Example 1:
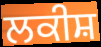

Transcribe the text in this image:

ਲਕੀਸ਼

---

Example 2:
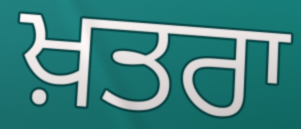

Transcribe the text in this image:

ਖ਼ਤਰਾ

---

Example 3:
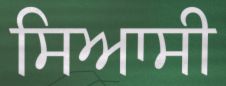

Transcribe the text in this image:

ਸਿਆਸੀ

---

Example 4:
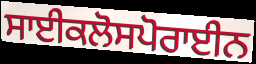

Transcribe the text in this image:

ਸਾਈਕਲੋਸਪੋਰਾਈਨ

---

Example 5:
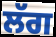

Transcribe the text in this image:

ਲੱਗ